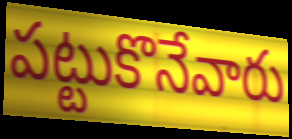
పట్టుకొనేవారు